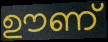
ഊണ്